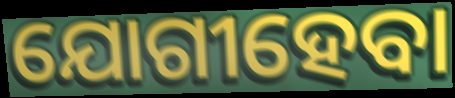
ଯୋଗୀହେବା